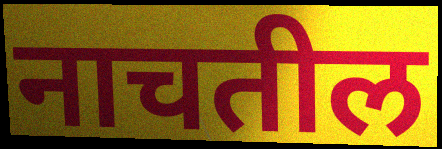
नाचतील